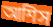
আশিস